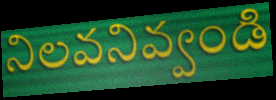
నిలవనివ్వండి